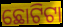
ଛୋଟିଟା